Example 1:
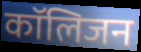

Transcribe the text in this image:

कॉलिजन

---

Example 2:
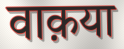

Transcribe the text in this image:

वाक़या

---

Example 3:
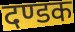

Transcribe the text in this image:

दण्डक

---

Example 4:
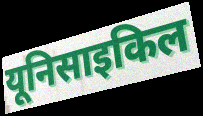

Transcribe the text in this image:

यूनिसाइकिल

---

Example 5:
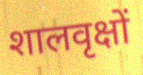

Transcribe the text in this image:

शालवृक्षों